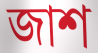
জাশ